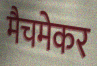
मैचमेकर